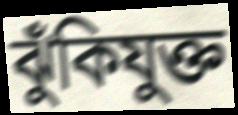
ঝুঁকিযুক্ত